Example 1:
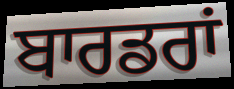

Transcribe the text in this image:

ਬਾਰਡਰਾਂ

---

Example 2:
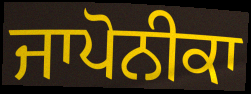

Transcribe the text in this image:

ਜਾਪੋਨੀਕਾ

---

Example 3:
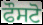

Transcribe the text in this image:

ਫੌਸਟੋ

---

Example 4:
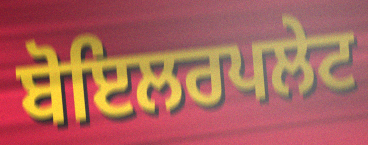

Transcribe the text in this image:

ਬੋਇਲਰਪਲੇਟ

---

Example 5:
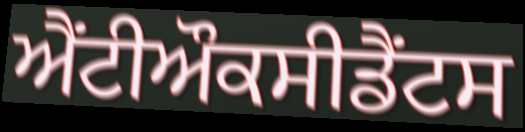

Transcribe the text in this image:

ਐਂਟੀਔਕਸੀਡੈਂਟਸ